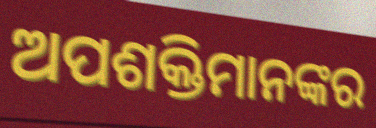
ଅପଶକ୍ତିମାନଙ୍କର